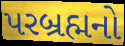
પરબ્રહ્મનો